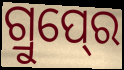
ଗ୍ରୁପ୍‍ରେ